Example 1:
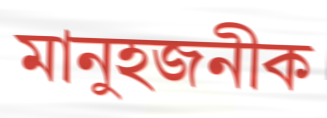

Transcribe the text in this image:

মানুহজনীক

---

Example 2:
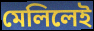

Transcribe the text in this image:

মেলিলেই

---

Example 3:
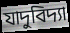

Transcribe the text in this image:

যাদুবিদ্যা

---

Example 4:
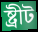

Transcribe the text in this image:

ষ্ট্ৰীট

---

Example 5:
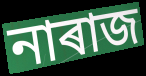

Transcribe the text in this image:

নাৰাজ